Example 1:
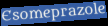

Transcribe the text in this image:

Esomeprazole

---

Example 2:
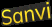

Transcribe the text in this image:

Sanvi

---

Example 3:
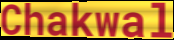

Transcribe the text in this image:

Chakwal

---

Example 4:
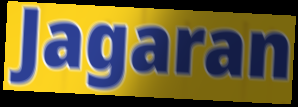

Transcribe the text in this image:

Jagaran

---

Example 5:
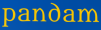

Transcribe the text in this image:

pandam